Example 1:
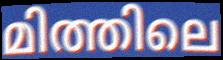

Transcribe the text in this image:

മിത്തിലെ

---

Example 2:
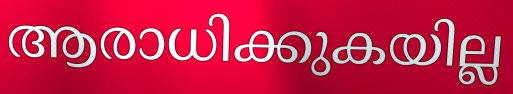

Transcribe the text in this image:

ആരാധിക്കുകയില്ല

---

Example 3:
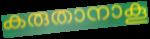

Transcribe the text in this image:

കരുതാനാകൂ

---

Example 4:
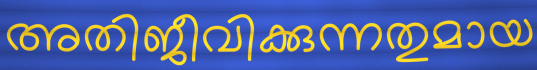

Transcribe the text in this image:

അതിജീവിക്കുന്നതുമായ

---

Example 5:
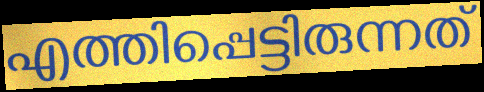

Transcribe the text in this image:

എത്തിപ്പെട്ടിരുന്നത്